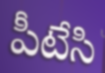
పీటేసి